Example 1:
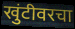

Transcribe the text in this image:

खुंटीवरचा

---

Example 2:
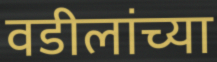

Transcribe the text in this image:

वडीलांच्या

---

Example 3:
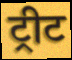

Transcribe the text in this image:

ट्रीट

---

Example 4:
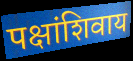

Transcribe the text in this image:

पक्षांशिवाय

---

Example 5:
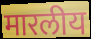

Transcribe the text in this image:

मारलीय